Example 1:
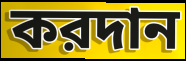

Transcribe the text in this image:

করদান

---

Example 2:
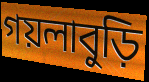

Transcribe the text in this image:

গয়লাবুড়ি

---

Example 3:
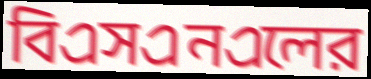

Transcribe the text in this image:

বিএসএনএলের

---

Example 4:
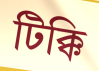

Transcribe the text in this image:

টিক্কি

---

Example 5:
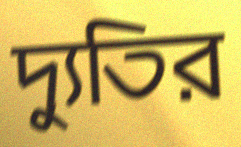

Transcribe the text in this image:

দ্যুতির